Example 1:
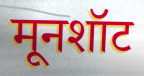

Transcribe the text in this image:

मूनशॉट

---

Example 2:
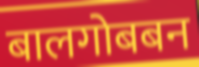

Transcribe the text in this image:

बालगोबबन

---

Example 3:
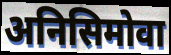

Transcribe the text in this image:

अनिसिमोवा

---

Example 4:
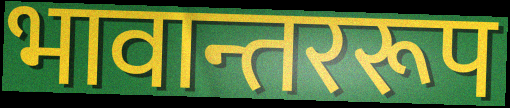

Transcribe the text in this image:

भावान्तररूप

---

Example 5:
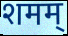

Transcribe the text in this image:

शमम्